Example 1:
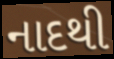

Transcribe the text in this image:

નાદથી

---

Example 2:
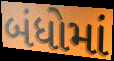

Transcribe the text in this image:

બંધોમાં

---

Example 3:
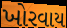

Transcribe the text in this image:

ખોરવાય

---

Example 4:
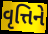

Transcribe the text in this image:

વૃત્તિને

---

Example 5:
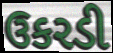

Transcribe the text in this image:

ઉકરડી